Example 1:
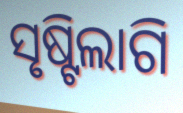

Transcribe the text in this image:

ସୃଷ୍ଟିଲାଗି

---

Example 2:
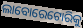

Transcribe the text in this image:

ଲାବୋରେଟୋରିକୁ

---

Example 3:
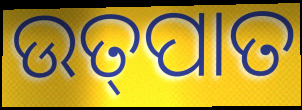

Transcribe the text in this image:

ଉତ୍‌ପାତ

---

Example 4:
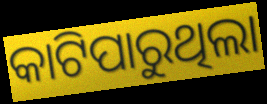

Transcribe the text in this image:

କାଟିପାରୁଥିଲା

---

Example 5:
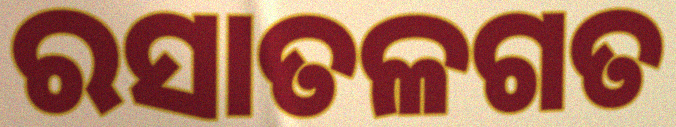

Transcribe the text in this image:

ରସାତଳଗତ